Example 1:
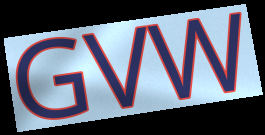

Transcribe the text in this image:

GVW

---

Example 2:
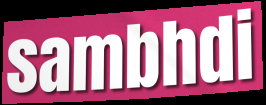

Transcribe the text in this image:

sambhdi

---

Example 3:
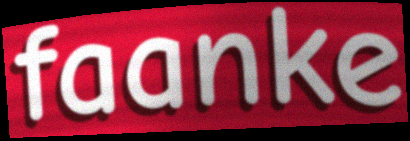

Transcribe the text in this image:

faanke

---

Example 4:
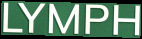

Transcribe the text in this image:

LYMPH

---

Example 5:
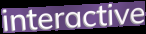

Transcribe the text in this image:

interactive